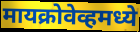
मायक्रोवेव्हमध्ये